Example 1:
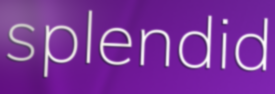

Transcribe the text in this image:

splendid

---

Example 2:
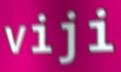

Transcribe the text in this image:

viji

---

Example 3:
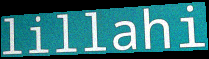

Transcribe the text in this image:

lillahi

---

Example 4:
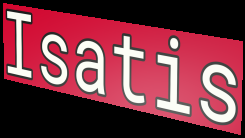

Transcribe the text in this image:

Isatis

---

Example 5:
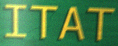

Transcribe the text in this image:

ITAT